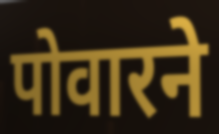
पोवारने